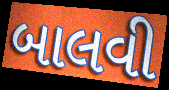
બાલવી